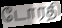
டோரதி